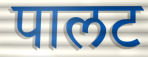
पालट